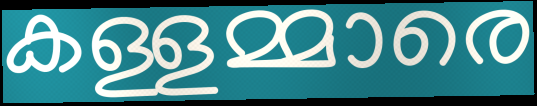
കള്ളമ്മാരെ